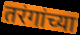
तरंगांच्या